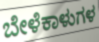
ಬೇಳೆಕಾಳುಗಳ